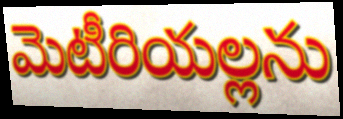
మెటీరియల్లను